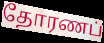
தோரணப்